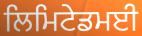
ਲਿਮਿਟੇਡਮਈ